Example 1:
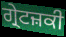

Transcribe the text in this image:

ਗ੍ਰੇਟਜ਼ਕੀ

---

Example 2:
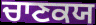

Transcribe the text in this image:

ਚਾਣਕਯ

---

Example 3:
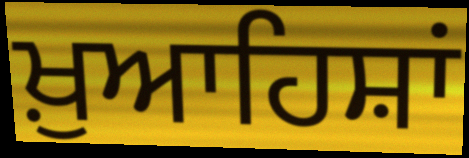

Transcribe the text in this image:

ਖ਼ੁਆਹਿਸ਼ਾਂ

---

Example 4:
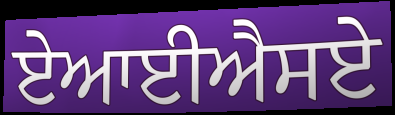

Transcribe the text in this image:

ਏਆਈਐਸਏ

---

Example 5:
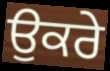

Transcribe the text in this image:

ਉਕਰੇ